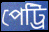
পেট্ৰি